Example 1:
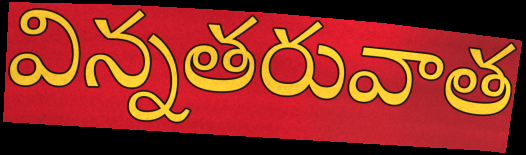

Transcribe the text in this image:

విన్నతరువాత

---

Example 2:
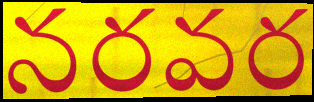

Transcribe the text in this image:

నరవర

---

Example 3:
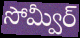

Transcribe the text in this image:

సోమ్వీర్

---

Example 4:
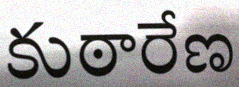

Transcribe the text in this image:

కుఠారేణ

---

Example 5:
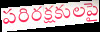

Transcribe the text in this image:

పరిరక్షకులపై